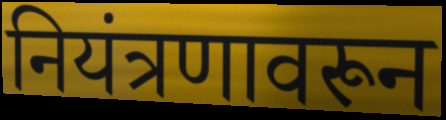
नियंत्रणावरून